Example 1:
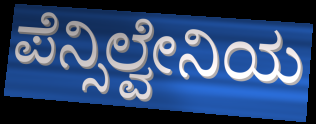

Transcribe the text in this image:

ಪೆನ್ಸಿಲ್ವೇನಿಯ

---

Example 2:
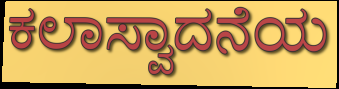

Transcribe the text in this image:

ಕಲಾಸ್ವಾದನೆಯ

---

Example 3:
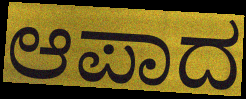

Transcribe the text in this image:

ಆಪಾದ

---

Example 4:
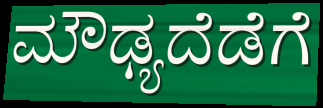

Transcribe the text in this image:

ಮೌಢ್ಯದೆಡೆಗೆ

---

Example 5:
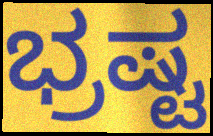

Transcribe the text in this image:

ಭ್ರಷ್ಟ